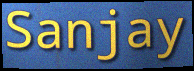
Sanjay